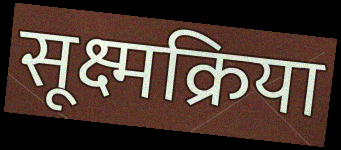
सूक्ष्मक्रिया